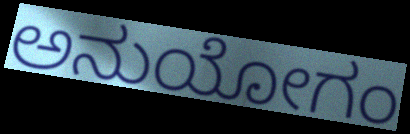
ಅನುಯೋಗಂ